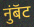
नुंबॅट